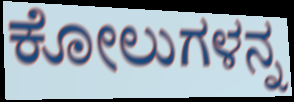
ಕೋಲುಗಳನ್ನ